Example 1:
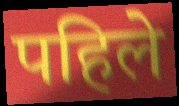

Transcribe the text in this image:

पहिले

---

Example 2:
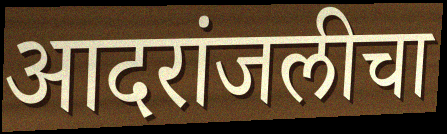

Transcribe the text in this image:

आदरांजलीचा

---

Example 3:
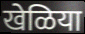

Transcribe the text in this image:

खेळिया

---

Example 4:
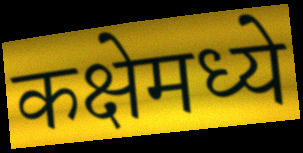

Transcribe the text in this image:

कक्षेमध्ये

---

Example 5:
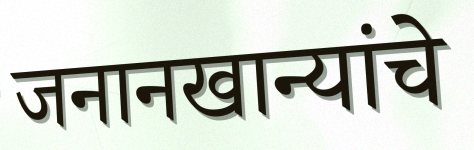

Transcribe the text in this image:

जनानखान्यांचे